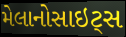
મેલાનોસાઇટ્સ